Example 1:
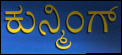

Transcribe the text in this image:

ಕುನ್ಮಿಂಗ್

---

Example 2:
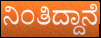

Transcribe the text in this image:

ನಿಂತಿದ್ದಾನೆ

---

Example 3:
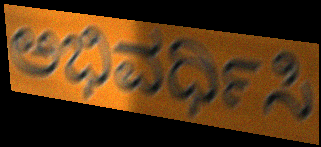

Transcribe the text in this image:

ಅಭಿವರ್ಧಿಸಿ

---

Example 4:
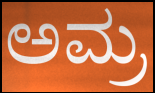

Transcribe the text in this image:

ಅಮ್ರ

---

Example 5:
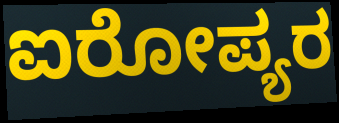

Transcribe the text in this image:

ಐರೋಪ್ಯರ